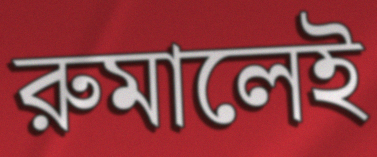
রুমালেই